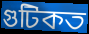
গুটিকত